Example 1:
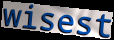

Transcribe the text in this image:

wisest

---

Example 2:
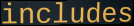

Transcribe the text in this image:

includes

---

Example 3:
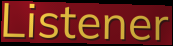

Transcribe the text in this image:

Listener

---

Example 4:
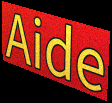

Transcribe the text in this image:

Aide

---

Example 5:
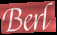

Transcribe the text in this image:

Berl